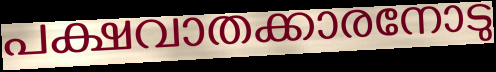
പക്ഷവാതക്കാരനോടു